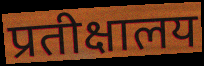
प्रतीक्षालय